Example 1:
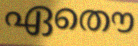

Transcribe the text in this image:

ഏതൌ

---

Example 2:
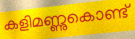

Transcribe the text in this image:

കളിമണ്ണുകൊണ്ട്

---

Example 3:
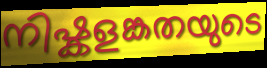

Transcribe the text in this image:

നിഷ്കളങ്കതയുടെ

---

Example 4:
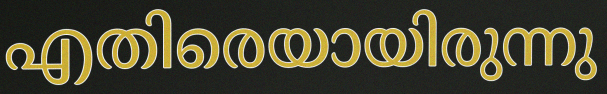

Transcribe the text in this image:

എതിരെയായിരുന്നു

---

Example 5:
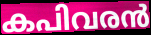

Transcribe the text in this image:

കപിവരൻ